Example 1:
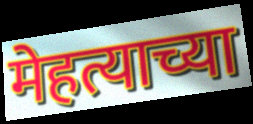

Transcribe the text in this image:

मेहत्याच्या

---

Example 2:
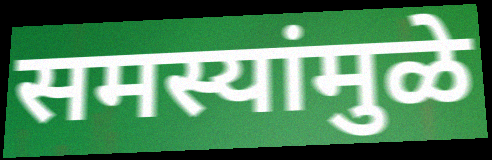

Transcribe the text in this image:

समस्यांमुळे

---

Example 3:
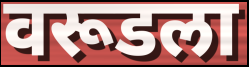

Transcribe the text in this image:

वरूडला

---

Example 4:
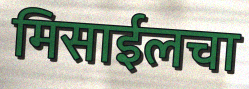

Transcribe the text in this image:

मिसाईलचा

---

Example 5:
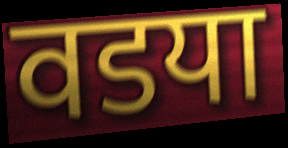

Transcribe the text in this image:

वडया